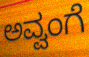
ಅವ್ವಂಗೆ